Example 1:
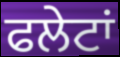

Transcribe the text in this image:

ਫਲੇਟਾਂ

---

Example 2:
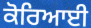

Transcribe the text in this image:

ਕੋਰਿਆਈ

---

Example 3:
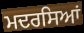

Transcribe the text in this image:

ਮਦਰਸਿਆਂ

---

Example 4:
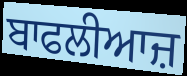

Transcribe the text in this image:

ਬਾਫਲੀਆਜ਼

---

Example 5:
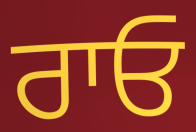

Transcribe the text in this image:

ਰਾਓ